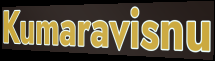
Kumaravisnu